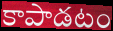
కాపాడటం